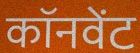
कॉनवेंट